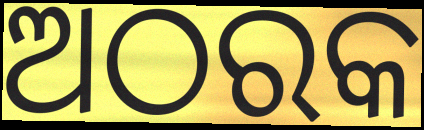
ଅଠରକ